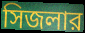
সিজলার